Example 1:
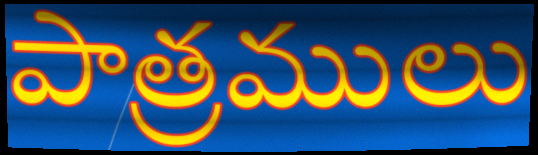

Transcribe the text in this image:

పాత్రములు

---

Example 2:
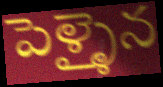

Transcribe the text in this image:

పెళ్ళైన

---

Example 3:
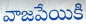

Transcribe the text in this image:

వాజపేయికి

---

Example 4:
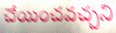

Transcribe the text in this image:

చేయించవచ్చని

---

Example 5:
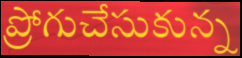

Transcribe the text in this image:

ప్రోగుచేసుకున్న